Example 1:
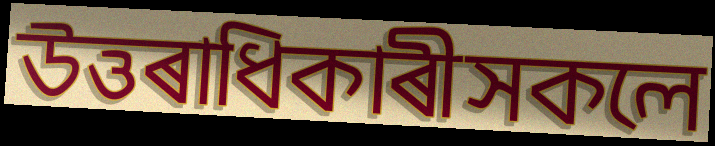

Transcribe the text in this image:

উত্তৰাধিকাৰীসকলে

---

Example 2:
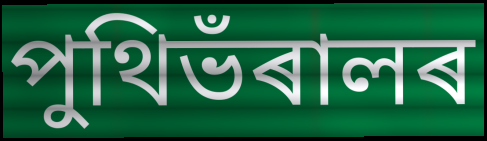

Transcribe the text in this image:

পুথিভঁৰালৰ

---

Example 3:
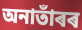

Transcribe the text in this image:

অনাতাঁৰৰ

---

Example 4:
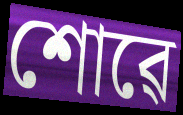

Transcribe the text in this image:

শোৱে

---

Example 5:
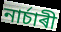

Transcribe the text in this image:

নাৰ্চাৰী